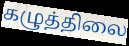
கழுத்திலை